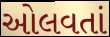
ઓલવતાં